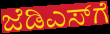
ಜೆಡಿಎಸ್‌ಗೆ